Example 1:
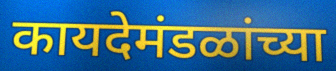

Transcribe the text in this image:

कायदेमंडळांच्या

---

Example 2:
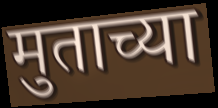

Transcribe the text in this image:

मुताच्या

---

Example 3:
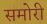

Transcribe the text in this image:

समोरी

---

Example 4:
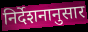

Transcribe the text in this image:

निर्देशनानुसार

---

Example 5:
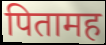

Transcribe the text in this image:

पितामह